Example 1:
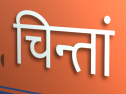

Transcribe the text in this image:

चिन्तां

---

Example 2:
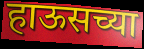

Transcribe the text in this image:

हाऊसच्या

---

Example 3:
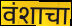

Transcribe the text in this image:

वंशाचा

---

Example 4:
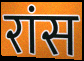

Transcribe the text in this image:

रांस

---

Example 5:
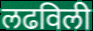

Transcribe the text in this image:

लढविली